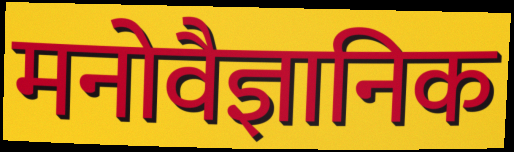
मनोवैज्ञानिक